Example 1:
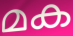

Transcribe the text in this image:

മക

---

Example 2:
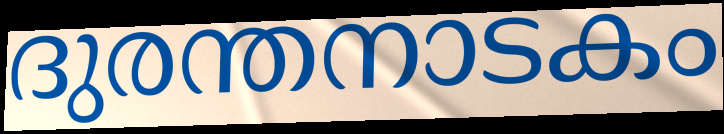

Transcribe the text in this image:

ദുരന്തനാടകം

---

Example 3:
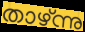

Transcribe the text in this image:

താഴ്ന്നു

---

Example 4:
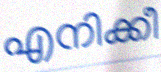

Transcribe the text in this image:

എനിക്കീ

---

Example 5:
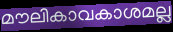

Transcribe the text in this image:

മൗലികാവകാശമല്ല